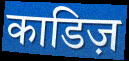
काडिज़